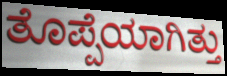
ತೊಪ್ಪೆಯಾಗಿತ್ತು